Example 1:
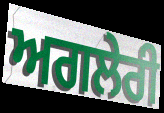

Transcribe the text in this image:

ਅਗਲੇਰੀ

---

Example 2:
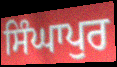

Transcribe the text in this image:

ਸਿੰਘਾਪੁਰ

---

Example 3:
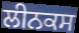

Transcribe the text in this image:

ਲੀਨਕਸ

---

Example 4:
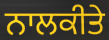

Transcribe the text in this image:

ਨਾਲਕੀਤੇ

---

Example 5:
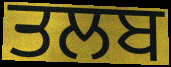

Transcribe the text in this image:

ਤਲਬ